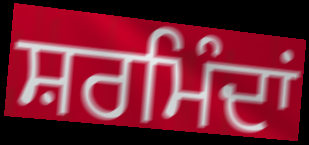
ਸ਼ਰਮਿੰਦਾਂ